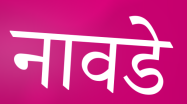
नावडे